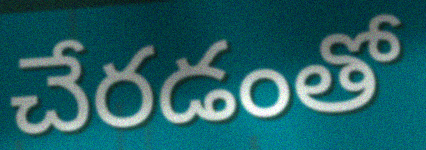
చేరడంతో